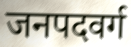
जनपदवर्ग